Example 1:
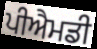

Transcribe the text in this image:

ਪੀਐਮਡੀ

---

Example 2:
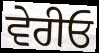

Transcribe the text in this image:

ਵੇਰੀਓ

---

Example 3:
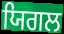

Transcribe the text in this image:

ਯਿਗਲ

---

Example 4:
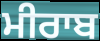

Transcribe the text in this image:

ਮੀਰਾਬ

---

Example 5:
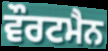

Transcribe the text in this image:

ਵੌਰਟਮੈਨ